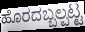
ಹೊರದಬ್ಬಲ್ಪಟ್ಟ